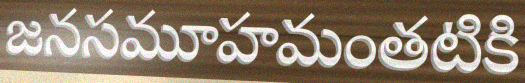
జనసమూహమంతటికి